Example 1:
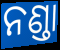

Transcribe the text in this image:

ନଣ୍ଡା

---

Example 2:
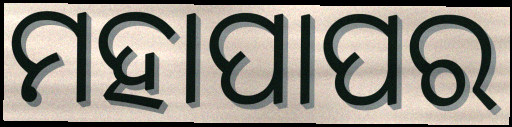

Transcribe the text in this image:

ମହାପାପର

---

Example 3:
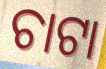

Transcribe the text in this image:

ଚାଟା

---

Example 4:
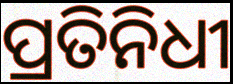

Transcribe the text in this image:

ପ୍ରତିନିଧୀ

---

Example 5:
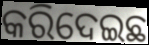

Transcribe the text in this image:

କରିଦେଇଛ